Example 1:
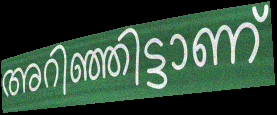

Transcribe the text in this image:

അറിഞ്ഞിട്ടാണ്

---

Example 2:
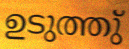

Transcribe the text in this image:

ഉടുത്തു്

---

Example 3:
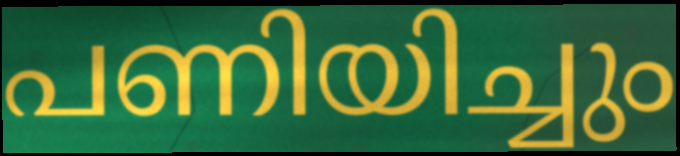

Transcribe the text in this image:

പണിയിച്ചും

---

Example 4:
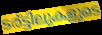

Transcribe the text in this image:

ടര്ട്ടിലുകളുടെ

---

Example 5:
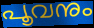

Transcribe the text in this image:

പൂവനും